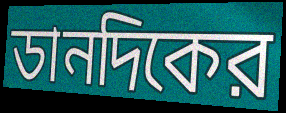
ডানদিকের